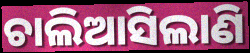
ଚାଲିଆସିଲାଣି